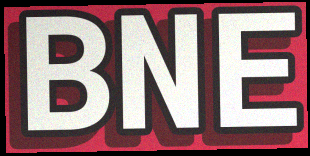
BNE